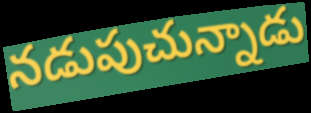
నడుపుచున్నాడు